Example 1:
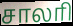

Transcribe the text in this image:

சாலரி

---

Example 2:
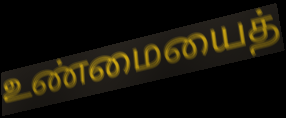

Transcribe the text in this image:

உண்மையைத்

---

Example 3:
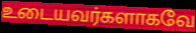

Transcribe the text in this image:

உடையவர்களாகவே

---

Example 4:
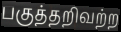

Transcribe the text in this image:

பகுத்தறிவற்ற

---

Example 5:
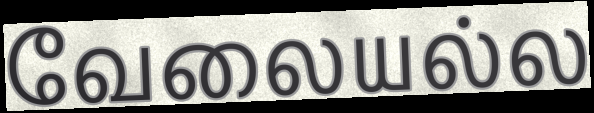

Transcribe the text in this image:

வேலையல்ல